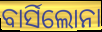
ବାର୍ସିଲୋନା